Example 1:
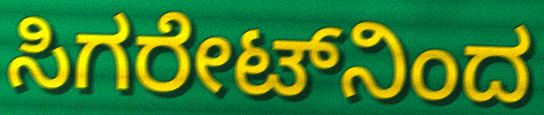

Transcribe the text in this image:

ಸಿಗರೇಟ್‌ನಿಂದ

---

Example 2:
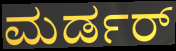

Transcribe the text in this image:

ಮರ್ಡರ್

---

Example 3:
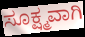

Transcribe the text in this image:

ಸೂಕ್ಷ್ಮವಾಗಿ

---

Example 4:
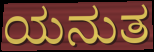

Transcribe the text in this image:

ಯನುತ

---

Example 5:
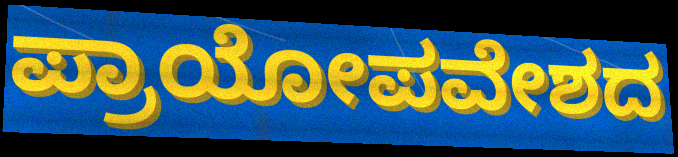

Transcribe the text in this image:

ಪ್ರಾಯೋಪವೇಶದ